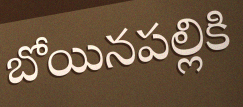
బోయినపల్లికి